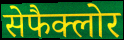
सेफैक्लोर